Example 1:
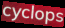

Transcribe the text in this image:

cyclops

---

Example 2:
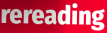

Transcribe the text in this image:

rereading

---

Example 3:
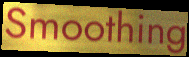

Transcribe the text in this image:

Smoothing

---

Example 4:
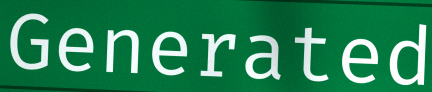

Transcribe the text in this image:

Generated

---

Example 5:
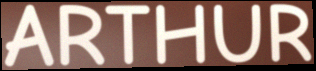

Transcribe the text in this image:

ARTHUR